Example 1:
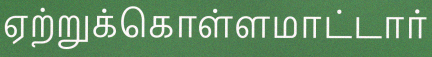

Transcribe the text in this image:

ஏற்றுக்கொள்ளமாட்டார்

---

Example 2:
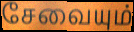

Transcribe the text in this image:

சேவையும்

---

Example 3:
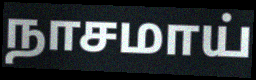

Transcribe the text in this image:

நாசமாய்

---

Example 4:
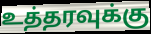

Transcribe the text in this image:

உத்தரவுக்கு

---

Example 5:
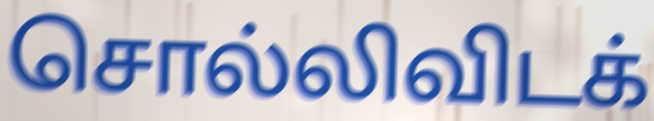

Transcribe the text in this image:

சொல்லிவிடக்